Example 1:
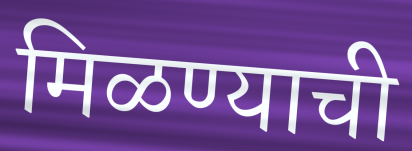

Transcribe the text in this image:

मिळण्याची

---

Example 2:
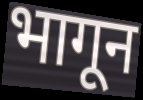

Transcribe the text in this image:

भागून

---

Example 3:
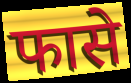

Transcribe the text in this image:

फासे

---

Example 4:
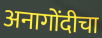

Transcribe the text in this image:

अनागोंदीचा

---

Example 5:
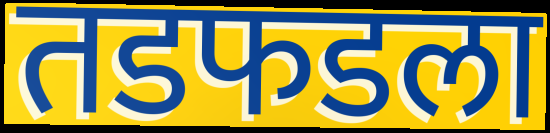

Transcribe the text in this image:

तडफडला